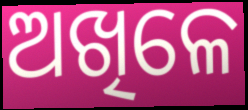
ଅଖିଳେ